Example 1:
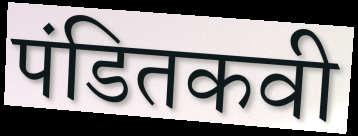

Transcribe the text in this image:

पंडितकवी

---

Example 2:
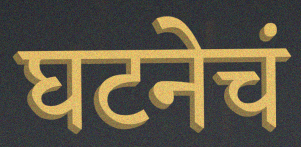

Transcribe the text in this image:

घटनेचं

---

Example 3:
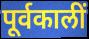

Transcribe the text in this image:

पूर्वकालीं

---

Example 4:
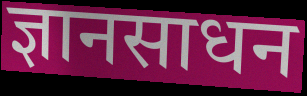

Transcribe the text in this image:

ज्ञानसाधन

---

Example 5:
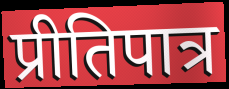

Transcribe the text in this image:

प्रीतिपात्र